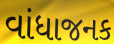
વાંધાજનક